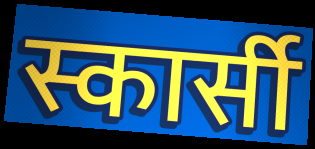
स्कार्सी